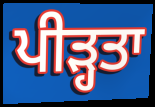
ਪੀੜ੍ਹਤਾ